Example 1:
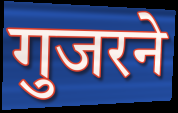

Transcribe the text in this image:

गुजरने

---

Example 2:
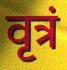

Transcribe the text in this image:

वृत्रं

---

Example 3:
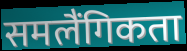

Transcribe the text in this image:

समलैंगिकता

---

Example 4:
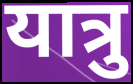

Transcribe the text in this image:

यात्रु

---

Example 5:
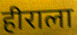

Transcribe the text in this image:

हीराला